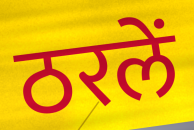
ठरलें